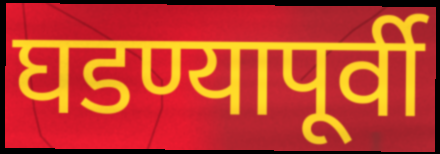
घडण्यापूर्वी